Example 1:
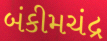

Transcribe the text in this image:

બંકીમચંદ્ર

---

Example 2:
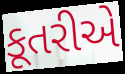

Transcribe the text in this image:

કૂતરીએ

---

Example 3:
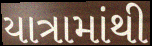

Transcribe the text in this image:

યાત્રામાંથી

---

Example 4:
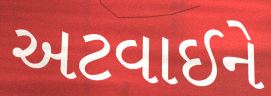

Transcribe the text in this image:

અટવાઈને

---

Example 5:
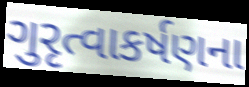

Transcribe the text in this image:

ગુરૃત્વાકર્ષણના